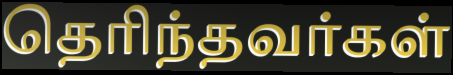
தெரிந்தவர்கள்